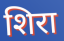
शिरा